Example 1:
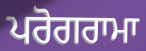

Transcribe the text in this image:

ਪਰੋਗਰਾਮਾ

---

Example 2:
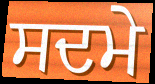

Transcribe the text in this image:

ਸਦਮੇ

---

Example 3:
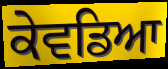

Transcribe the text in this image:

ਕੇਵਡਿਆ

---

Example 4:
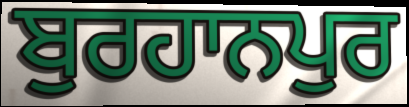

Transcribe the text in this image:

ਬੁਰਹਾਨਪੁਰ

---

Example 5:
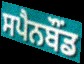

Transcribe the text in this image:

ਸਪੈਨਬੌਂਡ